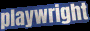
playwright